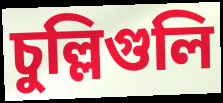
চুল্লিগুলি